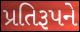
પ્રતિરૂપને